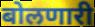
बोलणारी